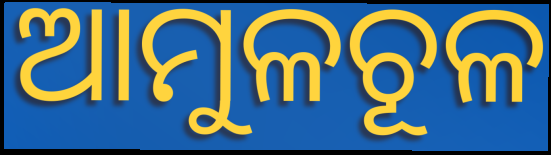
ଆମୁଳଚୂଳ